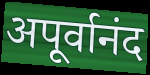
अपूर्वानंद